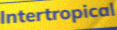
Intertropical